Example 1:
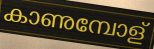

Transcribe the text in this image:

കാണുമ്പോള്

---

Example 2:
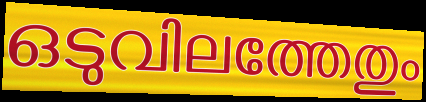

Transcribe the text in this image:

ഒടുവിലത്തേതും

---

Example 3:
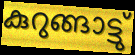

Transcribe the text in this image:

കുറുങ്ങാട്ടു്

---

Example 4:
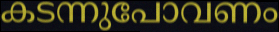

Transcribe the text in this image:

കടന്നുപോവണം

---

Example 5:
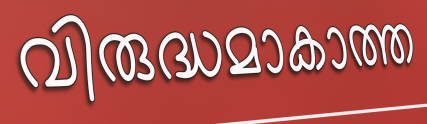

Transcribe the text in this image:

വിരുദ്ധമാകാത്ത